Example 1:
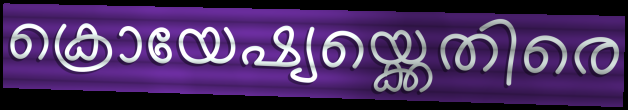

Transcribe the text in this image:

ക്രൊയേഷ്യയ്ക്കെതിരെ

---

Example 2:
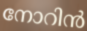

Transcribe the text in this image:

നോറിൻ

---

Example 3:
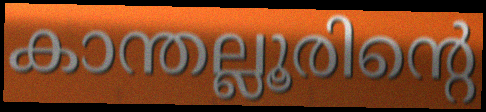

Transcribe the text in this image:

കാന്തല്ലൂരിന്റെ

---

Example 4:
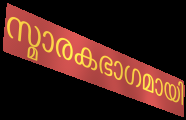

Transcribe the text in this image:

സ്മാരകഭാഗമായി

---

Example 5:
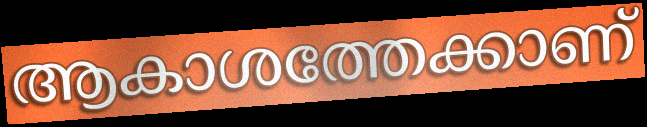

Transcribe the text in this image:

ആകാശത്തേക്കാണ്